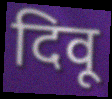
दिवू